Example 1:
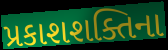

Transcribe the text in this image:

પ્રકાશશક્તિના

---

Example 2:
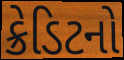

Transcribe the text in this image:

ક્રેડિટનો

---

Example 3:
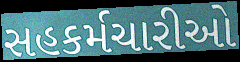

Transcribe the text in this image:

સહકર્મચારીઓ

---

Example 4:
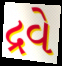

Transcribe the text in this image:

દ્રવે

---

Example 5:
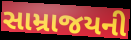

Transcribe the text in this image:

સામ્રાજયની